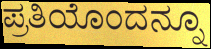
ಪ್ರತಿಯೊಂದನ್ನೂ